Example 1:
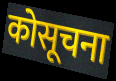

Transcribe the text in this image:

कोसूचना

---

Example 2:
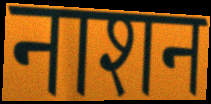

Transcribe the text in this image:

नाशन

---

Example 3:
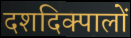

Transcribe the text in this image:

दशदिक्पालों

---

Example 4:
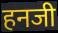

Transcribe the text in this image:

हनजी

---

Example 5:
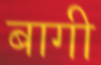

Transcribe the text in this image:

बागी